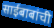
साईबाबांची